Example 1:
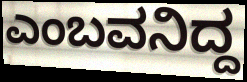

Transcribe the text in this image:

ಎಂಬವನಿದ್ದ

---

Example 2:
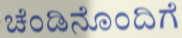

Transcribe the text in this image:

ಚೆಂಡಿನೊಂದಿಗೆ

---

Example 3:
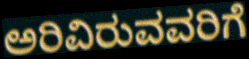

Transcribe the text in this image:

ಅರಿವಿರುವವರಿಗೆ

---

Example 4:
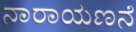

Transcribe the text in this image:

ನಾರಾಯಣನೆ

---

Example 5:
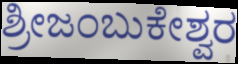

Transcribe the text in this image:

ಶ್ರೀಜಂಬುಕೇಶ್ವರ